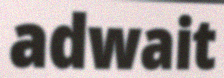
adwait